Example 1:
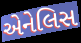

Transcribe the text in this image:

એનેલિસ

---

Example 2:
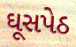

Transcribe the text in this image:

ઘૂસપેઠ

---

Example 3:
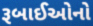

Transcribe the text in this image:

રૂબાઈઓનો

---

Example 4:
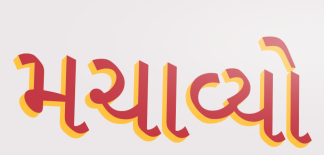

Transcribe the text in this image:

મચાવ્યો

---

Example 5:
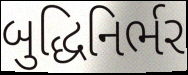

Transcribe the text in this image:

બુદ્ધિનિર્ભર